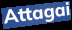
Attagai